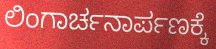
ಲಿಂಗಾರ್ಚನಾರ್ಪಣಕ್ಕೆ